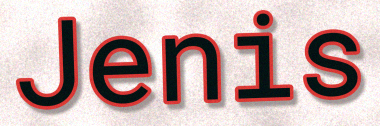
Jenis